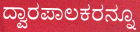
ದ್ವಾರಪಾಲಕರನ್ನೂ